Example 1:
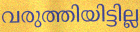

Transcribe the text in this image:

വരുത്തിയിട്ടില്ല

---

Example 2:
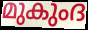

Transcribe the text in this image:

മുകുംദ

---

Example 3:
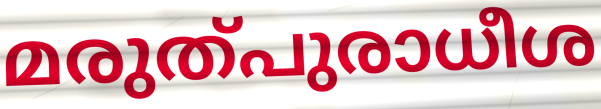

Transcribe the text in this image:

മരുത്പുരാധീശ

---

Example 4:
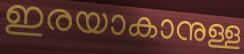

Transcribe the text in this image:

ഇരയാകാനുള്ള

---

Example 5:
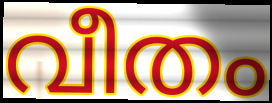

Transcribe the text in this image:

വീതം